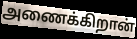
அணைக்கிறான்